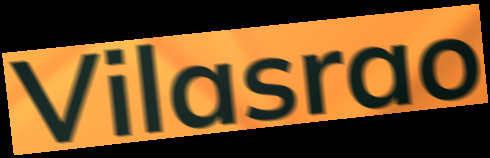
Vilasrao